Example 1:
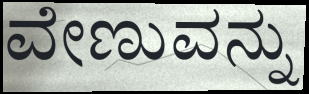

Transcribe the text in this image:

ವೇಣುವನ್ನು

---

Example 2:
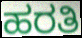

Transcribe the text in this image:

ಹರತಿ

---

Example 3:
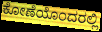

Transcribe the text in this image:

ಕೋಣೆಯೊಂದರಲ್ಲಿ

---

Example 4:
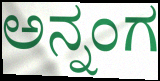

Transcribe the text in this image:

ಅನ್ನಂಗ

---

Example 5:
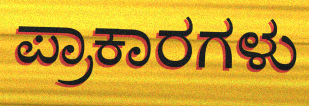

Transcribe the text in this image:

ಪ್ರಾಕಾರಗಳು